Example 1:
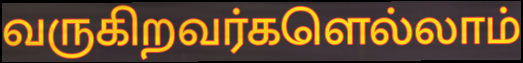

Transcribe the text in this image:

வருகிறவர்களெல்லாம்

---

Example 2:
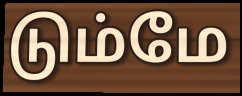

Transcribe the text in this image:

டும்மே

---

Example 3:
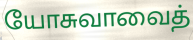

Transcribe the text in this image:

யோசுவாவைத்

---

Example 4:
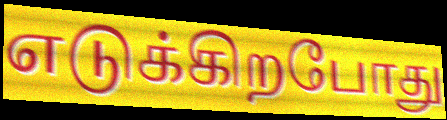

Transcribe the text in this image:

எடுக்கிறபோது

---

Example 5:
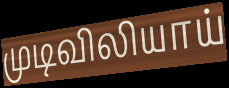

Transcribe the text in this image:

முடிவிலியாய்